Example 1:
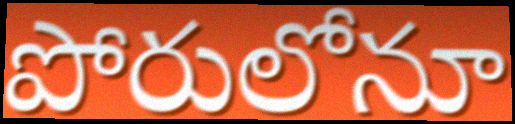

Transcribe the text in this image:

పోరులోనూ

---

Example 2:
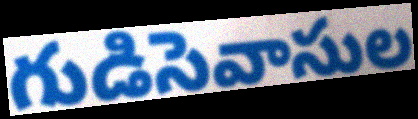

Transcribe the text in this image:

గుడిసెవాసుల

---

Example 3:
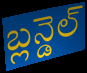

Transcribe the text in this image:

బ్లన్డెల్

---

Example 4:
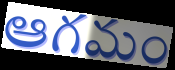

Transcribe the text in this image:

ఆగమం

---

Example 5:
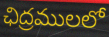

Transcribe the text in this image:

ఛిద్రములలో